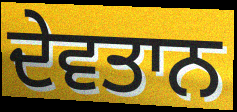
ਦੇਵਤਾਨ